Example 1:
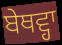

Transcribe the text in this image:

ਬੇਥਵ੍ਹਾ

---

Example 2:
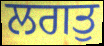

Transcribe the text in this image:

ਲਗਤੁ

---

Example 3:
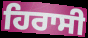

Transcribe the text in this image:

ਹਿਰਾਸੀ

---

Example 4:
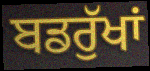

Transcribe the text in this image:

ਬਡਰੁੱਖਾਂ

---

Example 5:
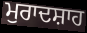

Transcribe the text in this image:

ਮੁਰਾਦਸ਼ਾਹ